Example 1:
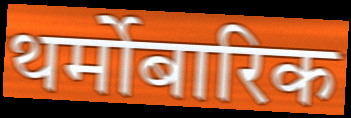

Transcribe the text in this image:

थर्मोबारिक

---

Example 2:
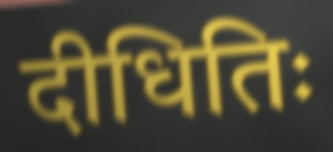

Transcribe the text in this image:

दीधितिः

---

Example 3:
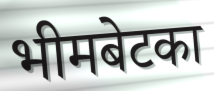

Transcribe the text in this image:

भीमबेटका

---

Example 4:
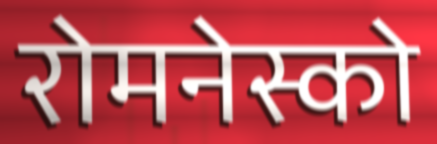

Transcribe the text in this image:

रोमनेस्को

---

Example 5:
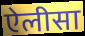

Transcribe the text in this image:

ऐलीसा